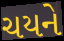
ચયને